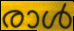
രാൾ